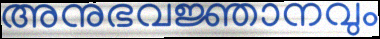
അനുഭവജ്ഞാനവും